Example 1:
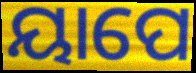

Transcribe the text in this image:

ୟାପେ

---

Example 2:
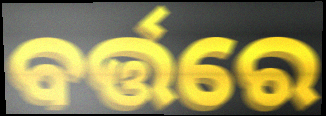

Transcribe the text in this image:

ବର୍ତ୍ତରେ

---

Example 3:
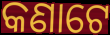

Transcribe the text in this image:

କଣାଟେ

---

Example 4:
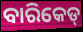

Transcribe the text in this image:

ବାରିକେଡ୍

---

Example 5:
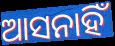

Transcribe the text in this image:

ଆସନାହିଁ